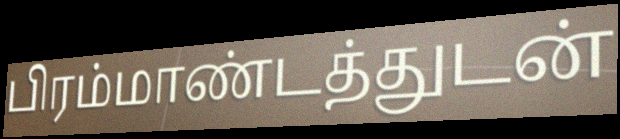
பிரம்மாண்டத்துடன்